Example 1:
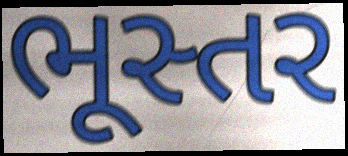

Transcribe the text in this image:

ભૂસ્તર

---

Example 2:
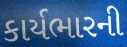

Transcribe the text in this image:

કાર્યભારની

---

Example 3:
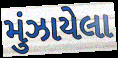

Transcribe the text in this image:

મુંઝાયેલા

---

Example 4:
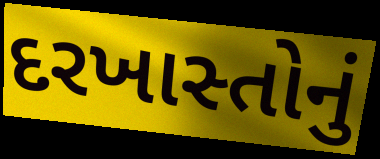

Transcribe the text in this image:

દરખાસ્તોનું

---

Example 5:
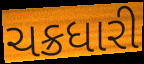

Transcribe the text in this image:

ચક્રધારી